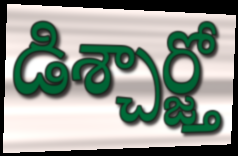
డిశ్చార్జ్తో